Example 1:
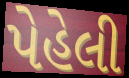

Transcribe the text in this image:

પેહેલી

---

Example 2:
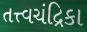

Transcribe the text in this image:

તત્ત્વચંદ્રિકા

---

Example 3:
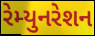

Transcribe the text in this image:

રેમ્યુનરેશન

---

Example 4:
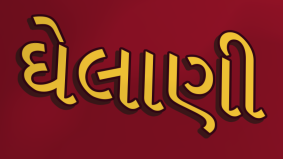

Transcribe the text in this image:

ઘેલાણી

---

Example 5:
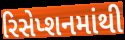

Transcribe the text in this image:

રિસેપ્શનમાંથી